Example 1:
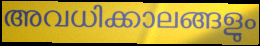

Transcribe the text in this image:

അവധിക്കാലങ്ങളും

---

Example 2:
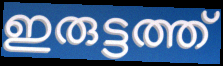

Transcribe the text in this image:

ഇരുട്ടത്ത്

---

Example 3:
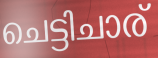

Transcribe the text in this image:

ചെട്ടിചാര്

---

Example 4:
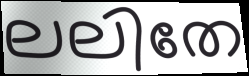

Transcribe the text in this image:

ലലിതേ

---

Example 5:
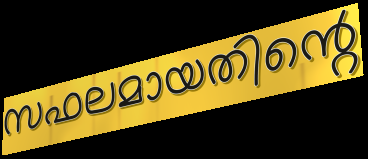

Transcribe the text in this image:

സഫലമായതിന്റെ